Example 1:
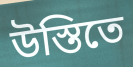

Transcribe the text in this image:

উস্তিতে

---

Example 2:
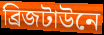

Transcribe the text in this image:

ব্রিজটাউনে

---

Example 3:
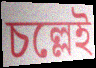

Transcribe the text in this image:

চল্লেই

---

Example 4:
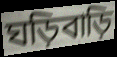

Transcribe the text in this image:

ঘড়িবাড়ি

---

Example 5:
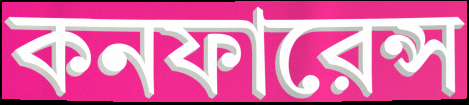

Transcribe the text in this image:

কনফারেন্স